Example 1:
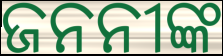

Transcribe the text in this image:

ଜନନୀଙ୍କ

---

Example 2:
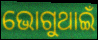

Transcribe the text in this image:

ଭୋଗୁଥାଇଁ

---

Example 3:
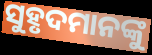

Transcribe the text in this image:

ସୁହୃଦମାନଙ୍କୁ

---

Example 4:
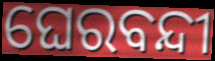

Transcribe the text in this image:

ଘେରବନ୍ଦୀ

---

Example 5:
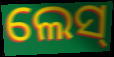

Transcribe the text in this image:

ଲେସ୍